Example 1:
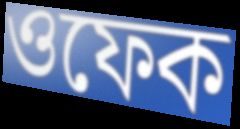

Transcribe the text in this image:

ওফেক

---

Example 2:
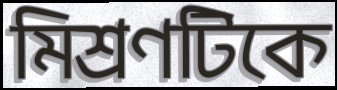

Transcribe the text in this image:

মিশ্রণটিকে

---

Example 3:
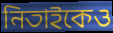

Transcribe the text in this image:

নিতাইকেও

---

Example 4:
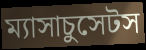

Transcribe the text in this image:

ম্যাসাচুসেটস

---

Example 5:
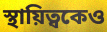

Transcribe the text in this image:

স্থায়িত্বকেও